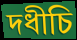
দধীচি